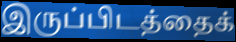
இருப்பிடத்தைக்